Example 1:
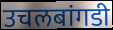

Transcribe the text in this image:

उचलबांगडी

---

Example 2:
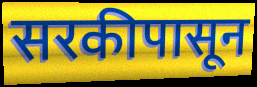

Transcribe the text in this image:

सरकीपासून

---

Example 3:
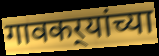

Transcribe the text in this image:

गावकर्यांच्या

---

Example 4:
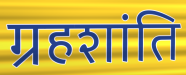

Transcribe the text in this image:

ग्रहशांति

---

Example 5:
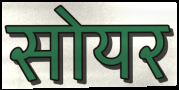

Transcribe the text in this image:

सोयर